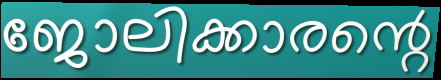
ജോലിക്കാരന്റെ